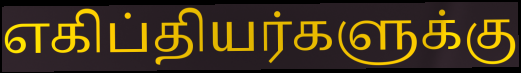
எகிப்தியர்களுக்கு